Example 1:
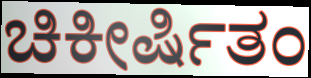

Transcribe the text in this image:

ಚಿಕೀರ್ಷಿತಂ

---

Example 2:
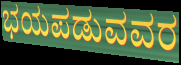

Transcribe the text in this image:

ಭಯಪಡುವವರ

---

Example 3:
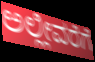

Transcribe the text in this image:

ಅಲ್ಲೀವರೆಗೆ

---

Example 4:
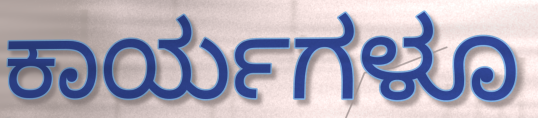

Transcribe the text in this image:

ಕಾರ್ಯಗಳೂ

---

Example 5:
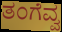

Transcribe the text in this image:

ತಂಗೆವ್ವ